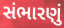
સંભારણું